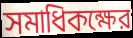
সমাধিকক্ষের